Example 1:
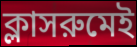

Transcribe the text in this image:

ক্লাসরুমেই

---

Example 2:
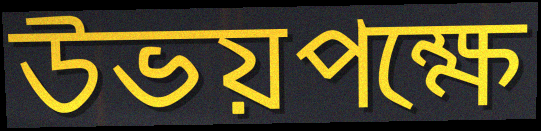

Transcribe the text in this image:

উভয়পক্ষে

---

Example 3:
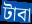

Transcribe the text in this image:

টাবা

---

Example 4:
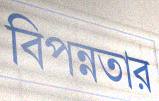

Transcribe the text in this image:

বিপন্নতার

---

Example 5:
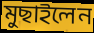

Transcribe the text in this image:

মুছাইলেন